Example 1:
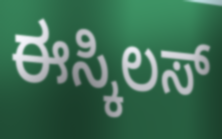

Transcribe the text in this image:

ಈಸ್ಕಿಲಸ್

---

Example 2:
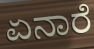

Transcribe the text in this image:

ಏನಾರೆ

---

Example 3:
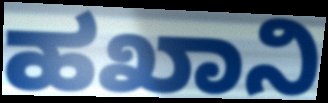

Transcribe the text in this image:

ಹಖಾನಿ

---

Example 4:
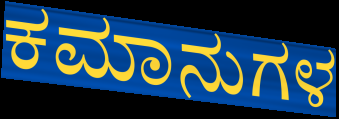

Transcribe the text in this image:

ಕಮಾನುಗಳ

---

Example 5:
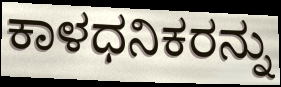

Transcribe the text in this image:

ಕಾಳಧನಿಕರನ್ನು